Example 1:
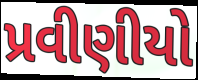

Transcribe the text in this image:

પ્રવીણીયો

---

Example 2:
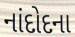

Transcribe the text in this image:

નાંદોદના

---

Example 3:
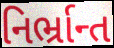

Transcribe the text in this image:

નિર્ભ્રાન્ત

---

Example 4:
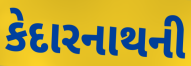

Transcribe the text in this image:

કેદારનાથની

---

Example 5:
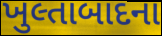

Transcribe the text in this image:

ખુલ્તાબાદના